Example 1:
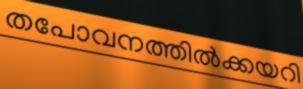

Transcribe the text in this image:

തപോവനത്തിൽക്കയറി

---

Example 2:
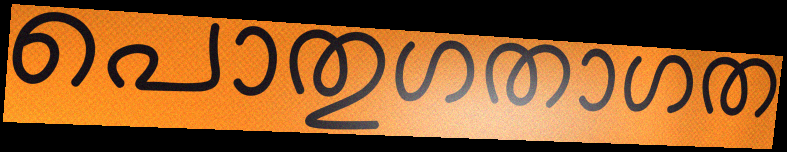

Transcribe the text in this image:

പൊതുഗതാഗത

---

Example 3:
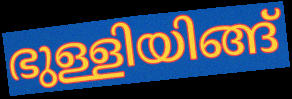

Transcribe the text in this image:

ഭുള്ളിയിങ്ങ്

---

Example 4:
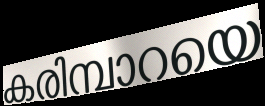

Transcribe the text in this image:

കരിമ്പാറയെ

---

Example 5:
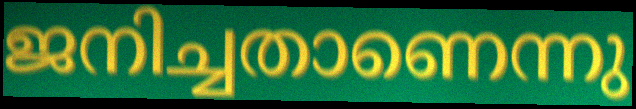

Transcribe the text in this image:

ജനിച്ചതാണെന്നു